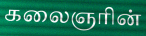
கலைஞரின்